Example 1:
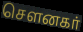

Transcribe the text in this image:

சௌனகர்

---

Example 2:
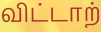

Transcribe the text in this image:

விட்டாற்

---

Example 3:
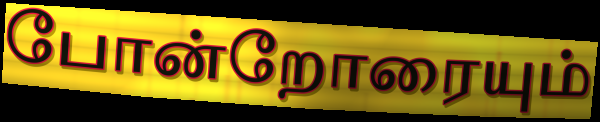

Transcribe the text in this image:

போன்றோரையும்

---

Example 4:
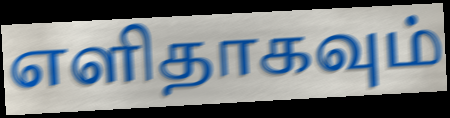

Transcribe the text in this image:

எளிதாகவும்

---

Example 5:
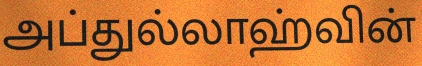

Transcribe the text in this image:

அப்துல்லாஹ்வின்